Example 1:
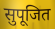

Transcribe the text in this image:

सुपूजित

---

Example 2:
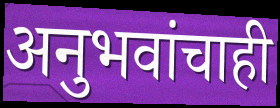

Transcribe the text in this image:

अनुभवांचाही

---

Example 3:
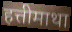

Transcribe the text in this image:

हत्तीमाथा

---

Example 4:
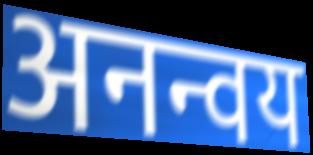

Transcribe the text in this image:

अनन्वय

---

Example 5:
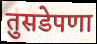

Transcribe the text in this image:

तुसडेपणा